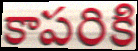
కాపరికి